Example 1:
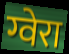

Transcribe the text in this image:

ग्वेरा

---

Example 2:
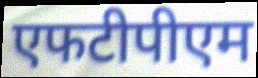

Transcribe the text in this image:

एफटीपीएम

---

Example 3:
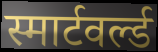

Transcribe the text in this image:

स्मार्टवर्ल्ड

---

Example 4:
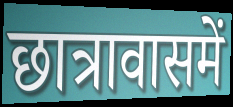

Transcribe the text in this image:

छात्रावासमें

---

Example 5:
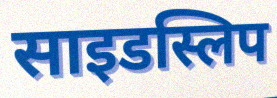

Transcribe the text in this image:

साइडस्लिप